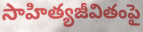
సాహిత్యజీవితంపై